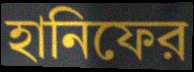
হানিফের